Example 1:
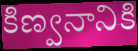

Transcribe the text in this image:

కిణ్వనానికి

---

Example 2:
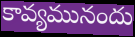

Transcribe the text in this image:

కావ్యమునందు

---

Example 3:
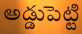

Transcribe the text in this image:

అడ్డుపెట్టి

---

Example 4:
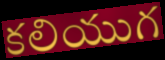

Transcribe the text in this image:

కలియుగ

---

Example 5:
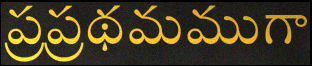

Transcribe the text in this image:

ప్రప్రథమముగా